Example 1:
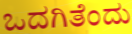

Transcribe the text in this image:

ಒದಗಿತೆಂದು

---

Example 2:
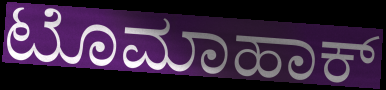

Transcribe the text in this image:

ಟೊಮಾಹಾಕ್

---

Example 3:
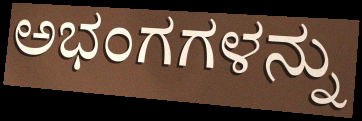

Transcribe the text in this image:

ಅಭಂಗಗಳನ್ನು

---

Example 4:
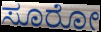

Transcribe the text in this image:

ಸೂರೋ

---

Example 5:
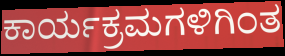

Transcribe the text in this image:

ಕಾರ್ಯಕ್ರಮಗಳಿಗಿಂತ